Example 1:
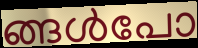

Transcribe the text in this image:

ങ്ങൾപോ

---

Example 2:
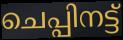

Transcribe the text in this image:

ചെപ്പിനട്ട്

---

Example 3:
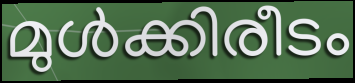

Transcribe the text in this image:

മുൾക്കിരീടം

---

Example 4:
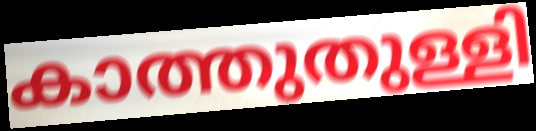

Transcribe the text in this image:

കാത്തുതുള്ളി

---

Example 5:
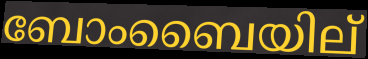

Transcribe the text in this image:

ബോംബൈയില്